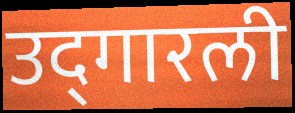
उद्‌गारली